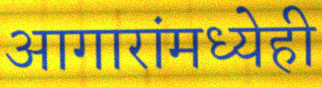
आगारांमध्येही